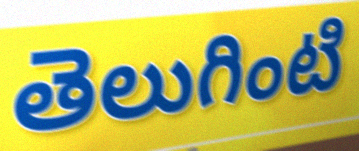
తెలుగింటి